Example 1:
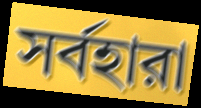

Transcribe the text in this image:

সর্বহারা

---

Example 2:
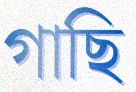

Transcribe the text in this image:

গাছি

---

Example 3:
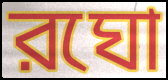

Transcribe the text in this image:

রঘো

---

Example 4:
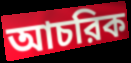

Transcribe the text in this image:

আচরিক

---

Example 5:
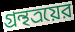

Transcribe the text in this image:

গ্রন্থত্রয়ের